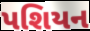
પશિયન